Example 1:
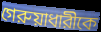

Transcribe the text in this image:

গেরুয়াধারীকে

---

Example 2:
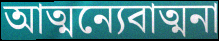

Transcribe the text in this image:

আত্মন্যেবাত্মনা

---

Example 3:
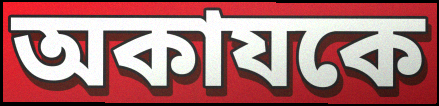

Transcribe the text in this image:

অকাযকে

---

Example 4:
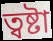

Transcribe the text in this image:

ত্বষ্টা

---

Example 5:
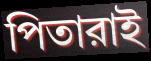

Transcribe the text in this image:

পিতারাই